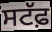
ਸਟੱਫ਼